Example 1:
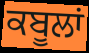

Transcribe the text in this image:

ਕਬੂਲਾਂ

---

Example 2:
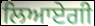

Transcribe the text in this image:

ਲਿਆਏਗੀ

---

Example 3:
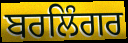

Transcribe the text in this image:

ਬਰਲਿੰਗਰ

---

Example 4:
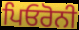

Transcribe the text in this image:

ਪਿਓਰੋਨੀ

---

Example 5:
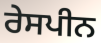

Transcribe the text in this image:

ਰੇਸਪੀਨ